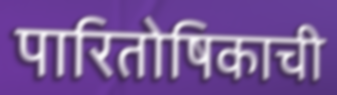
पारितोषिकाची